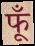
फूँ